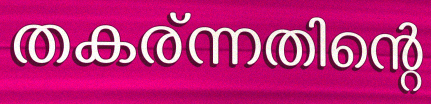
തകര്ന്നതിന്റെ